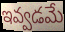
ఇవ్వడమే